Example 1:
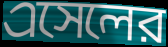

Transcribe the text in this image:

এসেলের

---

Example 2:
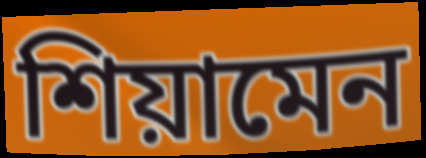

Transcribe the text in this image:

শিয়ামেন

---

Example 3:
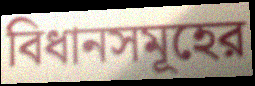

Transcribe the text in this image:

বিধানসমূহের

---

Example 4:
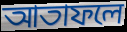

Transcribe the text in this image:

আতাফলে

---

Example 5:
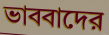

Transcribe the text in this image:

ভাববাদের